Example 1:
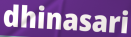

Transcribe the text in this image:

dhinasari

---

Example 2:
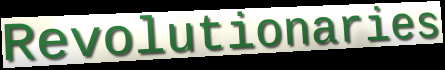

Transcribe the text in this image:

Revolutionaries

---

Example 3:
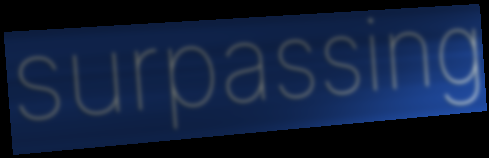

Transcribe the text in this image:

surpassing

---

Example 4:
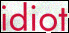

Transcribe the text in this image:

idiot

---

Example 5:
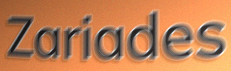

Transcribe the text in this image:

Zariades